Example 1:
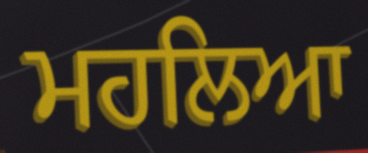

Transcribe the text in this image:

ਮਹਲਿਆ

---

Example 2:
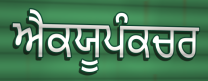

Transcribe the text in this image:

ਐਕਯੂਪੰਕਚਰ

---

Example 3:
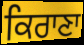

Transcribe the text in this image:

ਕਿਰਾਣਾ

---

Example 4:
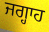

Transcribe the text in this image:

ਜਗ੍ਹਾਹ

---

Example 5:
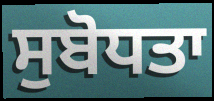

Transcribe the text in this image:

ਸੁਬੋਧਤਾ